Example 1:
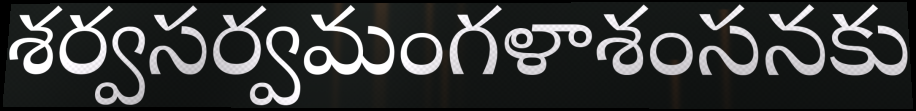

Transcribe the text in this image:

శర్వసర్వమంగళాశంసనకు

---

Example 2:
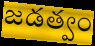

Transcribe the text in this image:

జడత్వం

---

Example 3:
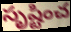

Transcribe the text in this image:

సృష్టించ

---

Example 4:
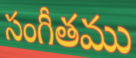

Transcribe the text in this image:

సంగీతము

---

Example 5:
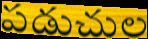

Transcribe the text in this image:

పడుచుల